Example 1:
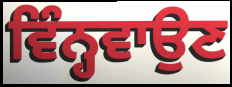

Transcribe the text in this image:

ਵਿੰਨ੍ਹਵਾਉਣ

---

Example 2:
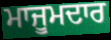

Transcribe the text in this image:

ਮਾਜੂਮਦਾਰ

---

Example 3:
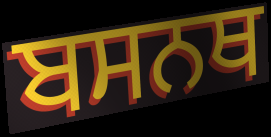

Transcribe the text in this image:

ਬਸਨਥ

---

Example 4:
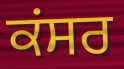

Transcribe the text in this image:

ਕਂਸਰ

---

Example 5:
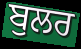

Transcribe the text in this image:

ਬੁਲਰ